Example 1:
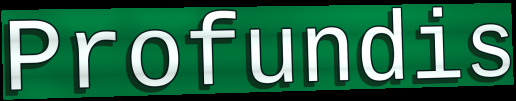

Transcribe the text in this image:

Profundis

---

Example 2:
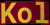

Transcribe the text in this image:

Kol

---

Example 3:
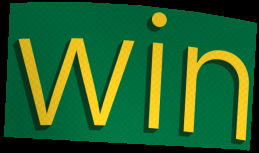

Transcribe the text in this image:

win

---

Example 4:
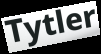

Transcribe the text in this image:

Tytler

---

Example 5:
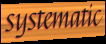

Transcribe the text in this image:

systematic